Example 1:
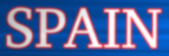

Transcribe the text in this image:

SPAIN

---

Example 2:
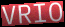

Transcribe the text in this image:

VRIO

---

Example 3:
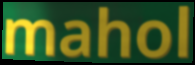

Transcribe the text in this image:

mahol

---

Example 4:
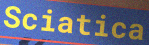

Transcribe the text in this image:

Sciatica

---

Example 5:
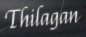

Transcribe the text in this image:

Thilagan